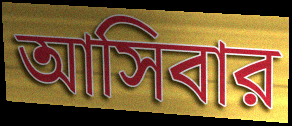
আসিবার